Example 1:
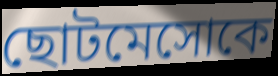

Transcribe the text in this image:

ছোটমেসোকে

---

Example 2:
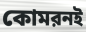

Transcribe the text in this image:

কোমরনই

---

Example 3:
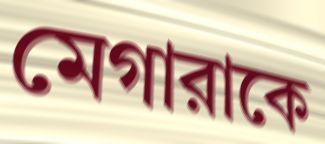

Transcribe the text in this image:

মেগারাকে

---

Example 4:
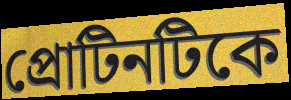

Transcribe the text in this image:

প্রোটিনটিকে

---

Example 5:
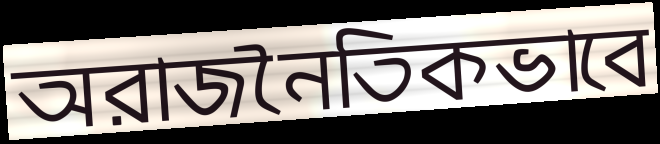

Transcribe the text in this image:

অরাজনৈতিকভাবে